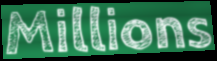
Millions